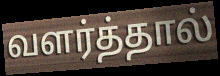
வளர்த்தால்